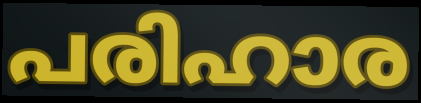
പരിഹാര